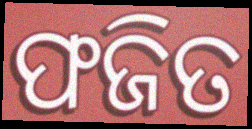
ଫଜିତ